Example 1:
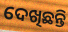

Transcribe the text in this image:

ଦେଖିଛନ୍ତି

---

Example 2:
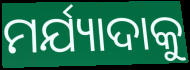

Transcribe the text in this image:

ମର୍ଯ୍ୟାଦାକୁ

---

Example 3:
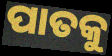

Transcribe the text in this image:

ପାତକୁ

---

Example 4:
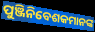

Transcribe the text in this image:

ପୁଞ୍ଜିନିବେଶକମାନଙ୍କ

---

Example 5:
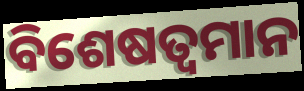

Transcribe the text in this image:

ବିଶେଷତ୍ଵମାନ